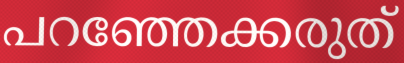
പറഞ്ഞേക്കരുത്